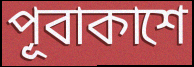
পূবাকাশে